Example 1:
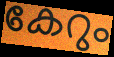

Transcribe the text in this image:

കേറും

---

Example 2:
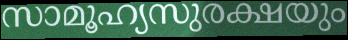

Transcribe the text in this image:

സാമൂഹ്യസുരക്ഷയും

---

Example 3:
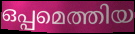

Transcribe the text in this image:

ഒപ്പമെത്തിയ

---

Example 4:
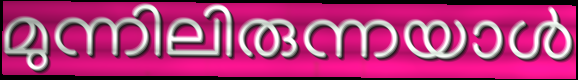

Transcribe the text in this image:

മുന്നിലിരുന്നയാൾ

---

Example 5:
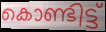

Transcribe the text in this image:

കൊണ്ടിട്ട്